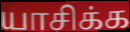
யாசிக்க